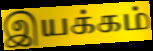
இயக்கம்